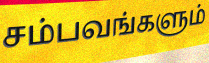
சம்பவங்களும்